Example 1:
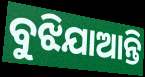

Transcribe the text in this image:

ବୁଝିଯାଆନ୍ତି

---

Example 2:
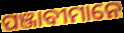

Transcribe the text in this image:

ପଞ୍ଜାବୀମାନେ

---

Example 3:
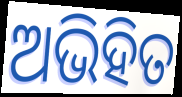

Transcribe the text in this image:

ଅଭିହିତ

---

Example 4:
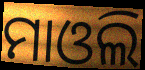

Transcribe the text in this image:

ମାଓଲି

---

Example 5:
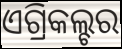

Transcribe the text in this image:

ଏଗ୍ରିକଲ୍ଚର